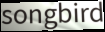
songbird